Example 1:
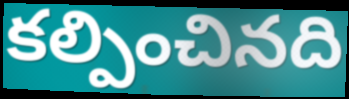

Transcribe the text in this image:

కల్పించినది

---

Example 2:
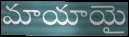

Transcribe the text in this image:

మాయాయై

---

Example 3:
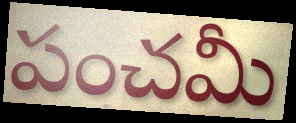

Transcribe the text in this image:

పంచమీ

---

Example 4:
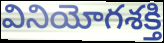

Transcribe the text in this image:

వినియోగశక్తి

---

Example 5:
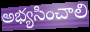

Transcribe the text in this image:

అభ్యసించాలి